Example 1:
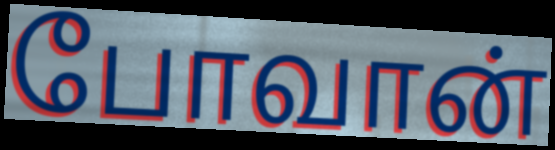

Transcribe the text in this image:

போவான்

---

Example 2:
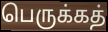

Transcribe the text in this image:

பெருக்கத்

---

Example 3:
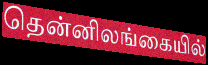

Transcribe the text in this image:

தென்னிலங்கையில்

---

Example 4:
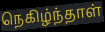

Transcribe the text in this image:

நெகிழ்ந்தாள்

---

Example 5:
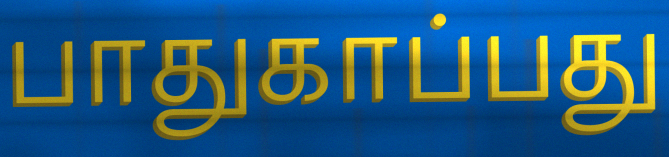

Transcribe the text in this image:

பாதுகாப்பது